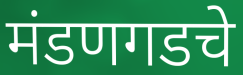
मंडणगडचे